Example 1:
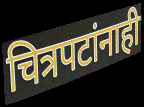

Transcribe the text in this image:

चित्रपटांनाही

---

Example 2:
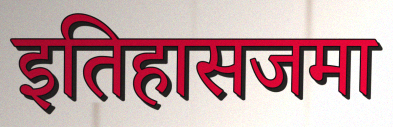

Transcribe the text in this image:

इतिहासजमा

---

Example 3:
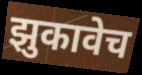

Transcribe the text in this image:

झुकावेच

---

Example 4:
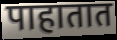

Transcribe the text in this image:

पाहातात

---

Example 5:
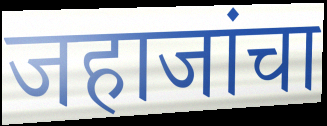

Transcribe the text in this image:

जहाजांचा